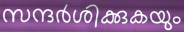
സന്ദർശിക്കുകയും